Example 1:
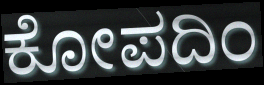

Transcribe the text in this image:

ಕೋಪದಿಂ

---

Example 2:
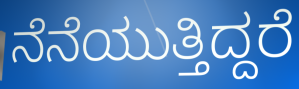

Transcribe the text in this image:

ನೆನೆಯುತ್ತಿದ್ದರೆ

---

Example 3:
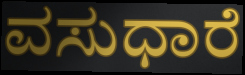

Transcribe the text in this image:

ವಸುಧಾರೆ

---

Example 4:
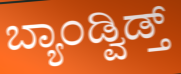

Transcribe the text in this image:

ಬ್ಯಾಂಡ್ವಿಡ್ತ್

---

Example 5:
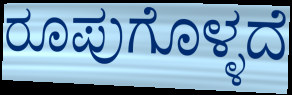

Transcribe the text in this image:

ರೂಪುಗೊಳ್ಳದೆ